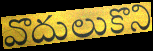
వొదులుకొని